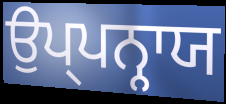
ਉਪ੍ਪਨ੍ਨਾਯ